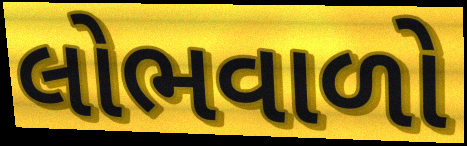
લોભવાળો